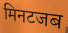
मिनटजब